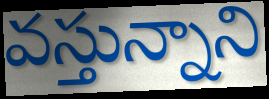
వస్తున్నాని